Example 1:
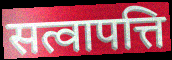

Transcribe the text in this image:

सत्वापत्ति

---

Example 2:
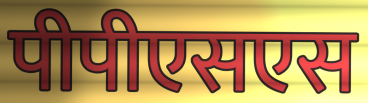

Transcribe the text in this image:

पीपीएसएस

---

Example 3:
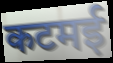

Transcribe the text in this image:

कटमई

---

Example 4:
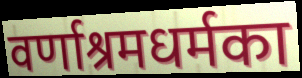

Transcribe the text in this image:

वर्णाश्रमधर्मका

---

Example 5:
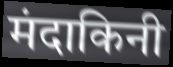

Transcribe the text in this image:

मंदाकिनी